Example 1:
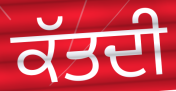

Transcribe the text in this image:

ਕੱਤਦੀ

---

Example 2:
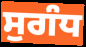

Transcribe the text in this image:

ਸੁਗੰਧ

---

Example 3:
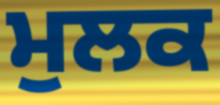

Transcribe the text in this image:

ਮੁਲਕ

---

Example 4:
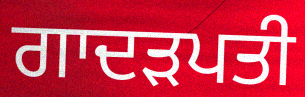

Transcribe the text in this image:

ਗਾਦੜਪਤੀ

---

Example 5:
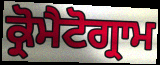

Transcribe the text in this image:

ਕ੍ਰੋਮੈਟੋਗ੍ਰਾਮ